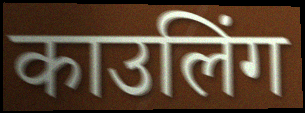
काउलिंग